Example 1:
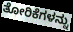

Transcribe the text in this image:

ತೋರಿಕೆಗಳನ್ನು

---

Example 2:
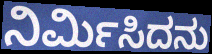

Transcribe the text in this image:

ನಿರ್ಮಿಸಿದನು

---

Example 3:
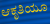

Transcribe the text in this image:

ಆಕೃತಿಯೂ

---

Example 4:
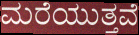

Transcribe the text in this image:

ಮರೆಯುತ್ತವೆ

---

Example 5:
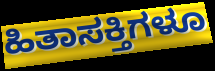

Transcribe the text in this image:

ಹಿತಾಸಕ್ತಿಗಳೂ